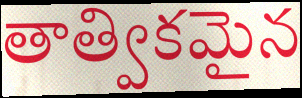
తాత్వికమైన